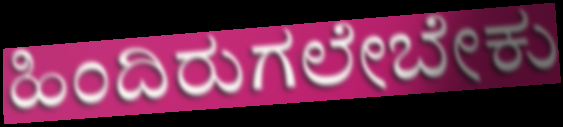
ಹಿಂದಿರುಗಲೇಬೇಕು